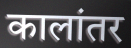
कालांतर